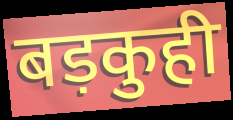
बड़कुही